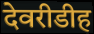
देवरीडीह